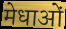
मेधाओं